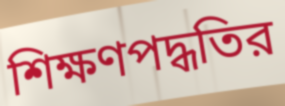
শিক্ষণপদ্ধতির